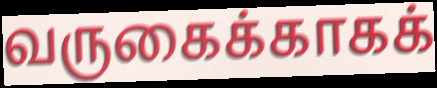
வருகைக்காகக்